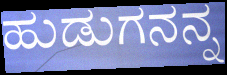
ಹುಡುಗನನ್ನ